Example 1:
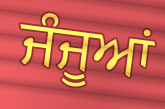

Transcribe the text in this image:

ਜੰਜੂਆਂ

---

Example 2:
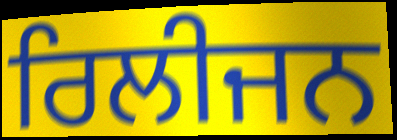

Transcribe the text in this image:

ਰਿਲੀਜਨ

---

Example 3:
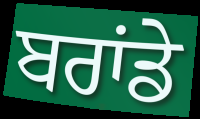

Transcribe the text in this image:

ਬਰਾਂਡੇ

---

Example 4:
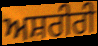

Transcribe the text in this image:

ਅਸ਼ਰੀਰੀ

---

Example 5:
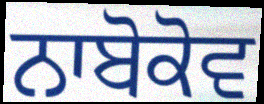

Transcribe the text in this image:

ਨਾਬੋਕੋਵ